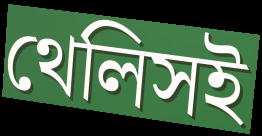
থেলিসই